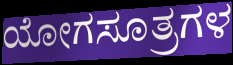
ಯೋಗಸೂತ್ರಗಳ